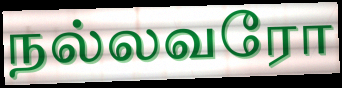
நல்லவரோ